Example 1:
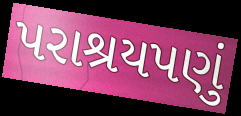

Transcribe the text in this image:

પરાશ્રયપણું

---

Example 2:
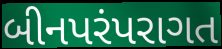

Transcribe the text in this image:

બીનપરંપરાગત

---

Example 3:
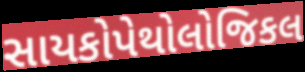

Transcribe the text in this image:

સાયકોપેથોલોજિકલ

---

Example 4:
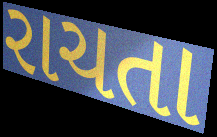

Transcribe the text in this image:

રાચતા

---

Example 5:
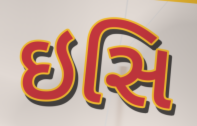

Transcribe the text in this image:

ઇસિ